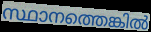
സ്ഥാനത്തെങ്കിൽ